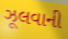
ઝૂલવાની